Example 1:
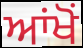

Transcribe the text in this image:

ਆਂਖੋਂ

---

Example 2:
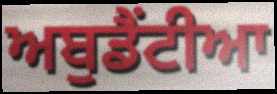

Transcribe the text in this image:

ਅਬੁਡੈਂਟੀਆ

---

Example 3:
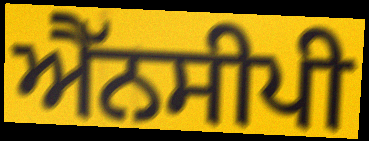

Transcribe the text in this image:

ਐੱਨਸੀਪੀ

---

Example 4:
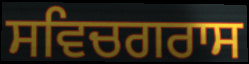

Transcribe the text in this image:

ਸਵਿਚਗਰਾਸ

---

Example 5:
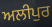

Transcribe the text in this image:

ਅਲੀਪੁਰ